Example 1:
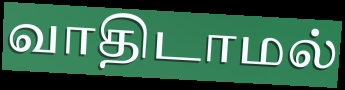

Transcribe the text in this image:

வாதிடாமல்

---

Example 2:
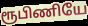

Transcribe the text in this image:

ரூபிணியே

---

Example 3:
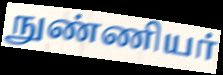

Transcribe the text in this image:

நுண்ணியர்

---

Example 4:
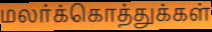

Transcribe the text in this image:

மலர்க்கொத்துக்கள்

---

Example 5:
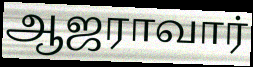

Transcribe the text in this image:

ஆஜராவார்